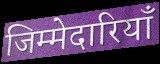
जिम्मेदारियॉं